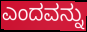
ಎಂದವನ್ನು